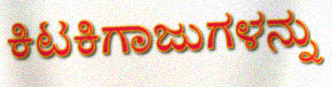
ಕಿಟಕಿಗಾಜುಗಳನ್ನು